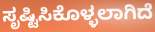
ಸೃಷ್ಟಿಸಿಕೊಳ್ಳಲಾಗಿದೆ